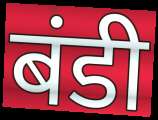
बंडी